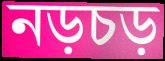
নড়চড়